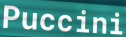
Puccini